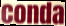
conda